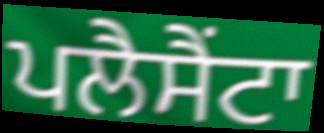
ਪਲੈਸੈਂਟਾ